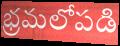
భ్రమలోపడి